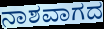
ನಾಶವಾಗದ